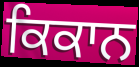
ਕਿਕਾਨ